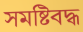
সমষ্টিবদ্ধ